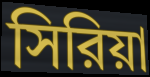
সিরিয়া